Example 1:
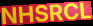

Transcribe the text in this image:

NHSRCL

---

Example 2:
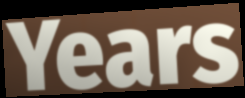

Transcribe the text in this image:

Years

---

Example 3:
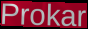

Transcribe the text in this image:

Prokar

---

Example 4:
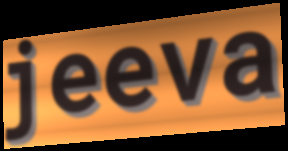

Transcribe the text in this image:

jeeva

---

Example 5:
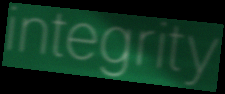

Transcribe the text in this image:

integrity